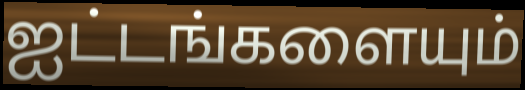
ஐட்டங்களையும்